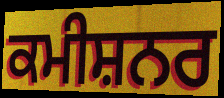
ਕਮੀਸ਼ਨਰ